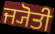
ਜ੍ਯੋਤੀ